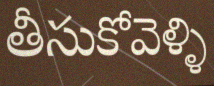
తీసుకోవెళ్ళి